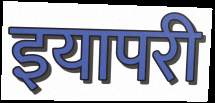
इयापरी